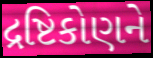
દ્રષ્ટિકોણને